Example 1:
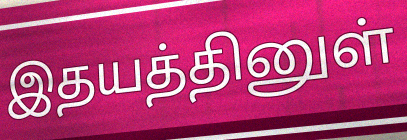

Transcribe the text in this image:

இதயத்தினுள்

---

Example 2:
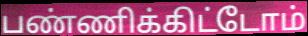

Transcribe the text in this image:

பண்ணிக்கிட்டோம்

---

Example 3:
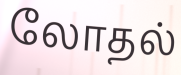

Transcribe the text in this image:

லோதல்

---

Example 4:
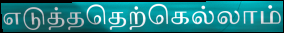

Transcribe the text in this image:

எடுத்ததெற்கெல்லாம்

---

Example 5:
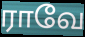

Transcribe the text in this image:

ராவே